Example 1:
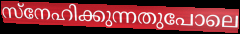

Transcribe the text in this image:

സ്നേഹിക്കുന്നതുപോലെ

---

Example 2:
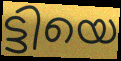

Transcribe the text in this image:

ട്ടിയെ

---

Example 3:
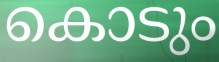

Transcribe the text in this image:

കൊടും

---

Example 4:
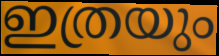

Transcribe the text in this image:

ഇത്രയും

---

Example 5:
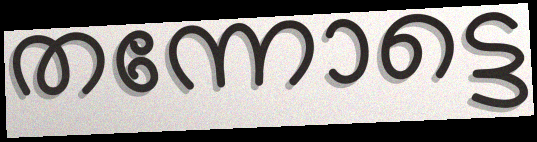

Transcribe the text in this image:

തന്നോട്ടെ